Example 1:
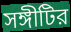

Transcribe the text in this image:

সঙ্গীটির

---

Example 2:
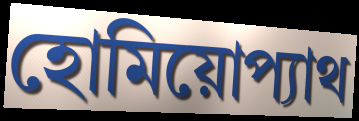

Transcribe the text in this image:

হোমিয়োপ্যাথ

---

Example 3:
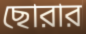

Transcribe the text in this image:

ছোরার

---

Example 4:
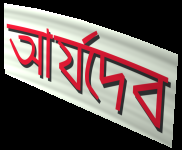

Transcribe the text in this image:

আর্যদেব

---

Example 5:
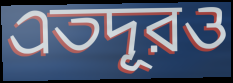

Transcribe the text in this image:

এতদূরও